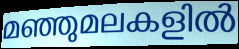
മഞ്ഞുമലകളിൽ